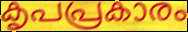
കൃപപ്രകാരം